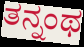
ತನ್ನಂಥ